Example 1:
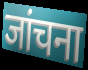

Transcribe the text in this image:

जांचना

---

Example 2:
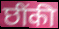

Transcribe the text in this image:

छींकी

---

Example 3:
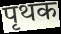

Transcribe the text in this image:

पृथक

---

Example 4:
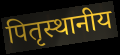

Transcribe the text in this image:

पितृस्थानीय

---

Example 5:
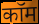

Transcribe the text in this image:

कॉम